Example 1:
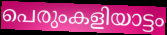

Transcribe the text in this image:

പെരുംകളിയാട്ടം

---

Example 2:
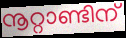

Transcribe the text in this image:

നൂറ്റാണ്ടിന്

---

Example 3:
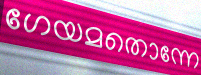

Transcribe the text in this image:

ഗേയമതൊന്നേ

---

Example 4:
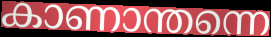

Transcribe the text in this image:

കാണാന്തന്നെ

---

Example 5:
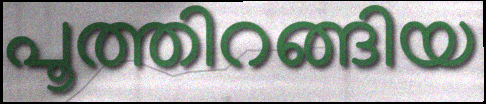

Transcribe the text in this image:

പൂത്തിറങ്ങിയ